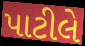
પાટીલે